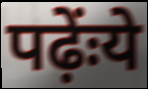
पढ़ेंःये